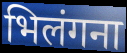
भिलंगना